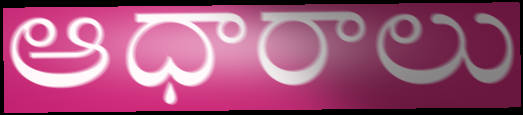
ఆధారాలు